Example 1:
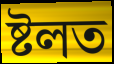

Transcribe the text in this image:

ষ্টলত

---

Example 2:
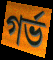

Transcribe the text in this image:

গৰ্ভ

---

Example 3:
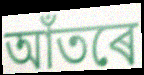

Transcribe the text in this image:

আঁতৰে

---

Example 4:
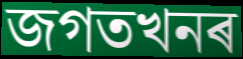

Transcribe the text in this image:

জগতখনৰ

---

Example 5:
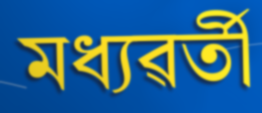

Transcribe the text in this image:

মধ্যৱৰ্তী